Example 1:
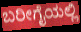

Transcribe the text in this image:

ಬರೀಗೈಯಲ್ಲಿ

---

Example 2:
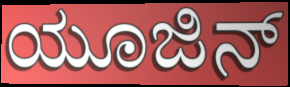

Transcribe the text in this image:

ಯೂಜಿನ್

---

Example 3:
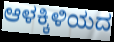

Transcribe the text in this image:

ಆಳಕ್ಕಿಳಿಯದ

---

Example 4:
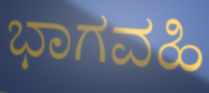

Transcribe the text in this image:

ಭಾಗವಹಿ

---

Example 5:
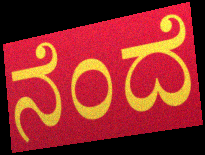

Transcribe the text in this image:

ನೆಂದೆ